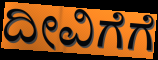
ದೀವಿಗೆಗೆ